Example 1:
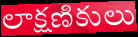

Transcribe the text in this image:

లాక్షణికులు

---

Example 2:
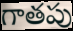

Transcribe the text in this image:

గాతపు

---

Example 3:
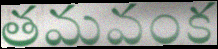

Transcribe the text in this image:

తమవంక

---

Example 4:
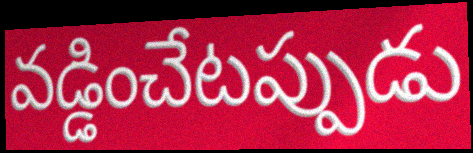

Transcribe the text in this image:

వడ్డించేటప్పుడు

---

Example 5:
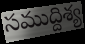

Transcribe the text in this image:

సముద్దిశ్య